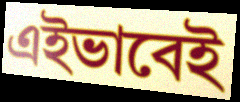
এইভাবেই